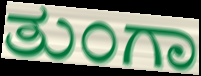
ತುಂಗಾ